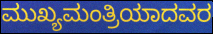
ಮುಖ್ಯಮಂತ್ರಿಯಾದವರ